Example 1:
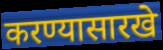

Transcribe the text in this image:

करण्यासारखे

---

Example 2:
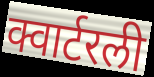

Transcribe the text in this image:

क्वार्टरली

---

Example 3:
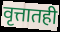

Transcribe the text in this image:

वृत्तातही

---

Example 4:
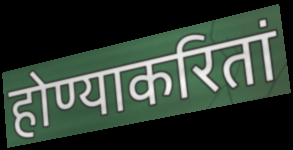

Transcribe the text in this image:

होण्याकरितां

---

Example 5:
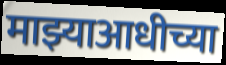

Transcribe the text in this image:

माझ्याआधीच्या